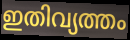
ഇതിവ്യത്തം